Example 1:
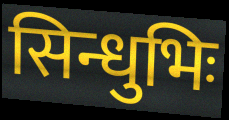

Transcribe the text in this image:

सिन्धुभिः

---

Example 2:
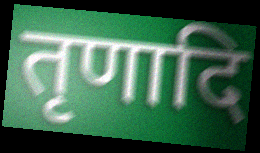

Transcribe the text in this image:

तृणादि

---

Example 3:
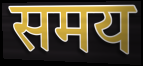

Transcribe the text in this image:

समय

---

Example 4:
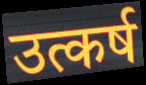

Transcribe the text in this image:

उत्कर्ष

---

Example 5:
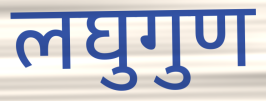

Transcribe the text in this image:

लघुगुण